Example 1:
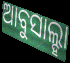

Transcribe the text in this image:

ଆବୁସାଲ୍ହା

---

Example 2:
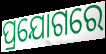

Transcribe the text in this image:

ପ୍ରଯୋଗରେ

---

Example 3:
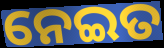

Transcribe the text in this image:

ନେଇତ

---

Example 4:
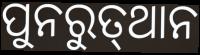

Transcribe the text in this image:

ପୁନରୁତ୍‍ଥାନ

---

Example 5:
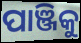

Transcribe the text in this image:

ପାଞ୍ଜିକୁ